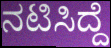
ನಟಿಸಿದ್ದೆ